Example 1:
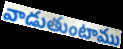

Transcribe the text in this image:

వాడుతుంటాము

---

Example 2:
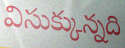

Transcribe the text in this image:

విసుక్కున్నది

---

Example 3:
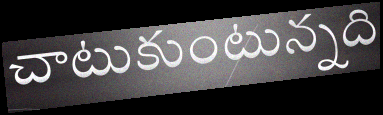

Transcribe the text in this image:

చాటుకుంటున్నది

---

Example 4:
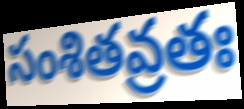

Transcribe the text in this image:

సంశితవ్రతః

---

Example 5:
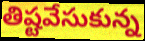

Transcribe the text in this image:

తిష్టవేసుకున్న